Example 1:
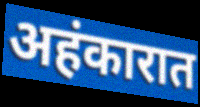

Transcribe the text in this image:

अहंकारात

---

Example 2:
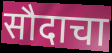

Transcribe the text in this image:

सौदाचा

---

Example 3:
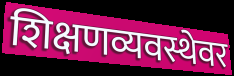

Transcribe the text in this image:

शिक्षणव्यवस्थेवर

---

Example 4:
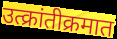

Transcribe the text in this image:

उत्क्रांतीक्रमात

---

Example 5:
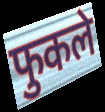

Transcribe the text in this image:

फुकले